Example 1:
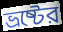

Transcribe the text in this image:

ভ্রষ্টের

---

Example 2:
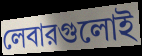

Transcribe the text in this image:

লেবারগুলোই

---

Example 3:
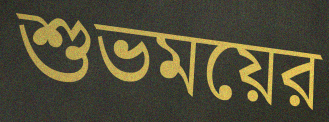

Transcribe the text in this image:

শুভময়ের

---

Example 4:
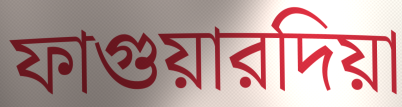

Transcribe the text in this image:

ফাগুয়ারদিয়া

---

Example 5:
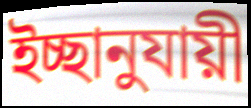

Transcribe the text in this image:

ইচ্ছানুযায়ী